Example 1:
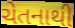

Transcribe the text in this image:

ચેતનાથી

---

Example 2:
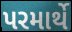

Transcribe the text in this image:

પરમાર્થે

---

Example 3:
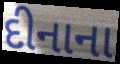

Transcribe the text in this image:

દીનાના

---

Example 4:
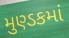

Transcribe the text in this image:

મુણ્ડકમાં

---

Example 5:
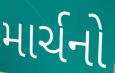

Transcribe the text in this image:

માર્ચનો